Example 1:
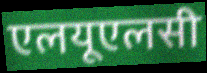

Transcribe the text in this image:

एलयूएलसी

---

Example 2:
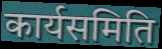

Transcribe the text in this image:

कार्यसमिति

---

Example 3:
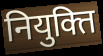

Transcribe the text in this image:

नियुक्‍ति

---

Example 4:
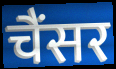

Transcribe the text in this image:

चैंसर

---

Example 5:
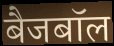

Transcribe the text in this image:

बैजबॉल